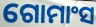
ଗୋମାଂସ